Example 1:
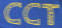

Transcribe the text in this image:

CCT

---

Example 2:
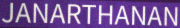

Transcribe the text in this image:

JANARTHANAN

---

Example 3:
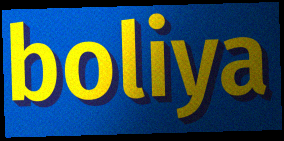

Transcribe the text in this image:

boliya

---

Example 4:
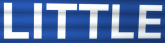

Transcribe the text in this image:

LITTLE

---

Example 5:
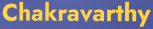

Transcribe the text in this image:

Chakravarthy